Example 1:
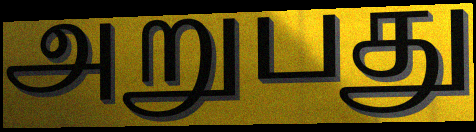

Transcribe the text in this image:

அறுபது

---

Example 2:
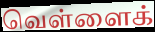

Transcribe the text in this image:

வெள்ளைக்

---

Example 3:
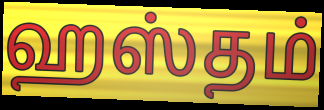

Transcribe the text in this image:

ஹஸ்தம்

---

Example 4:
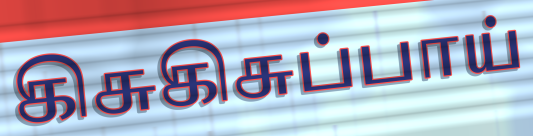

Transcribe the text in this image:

கிசுகிசுப்பாய்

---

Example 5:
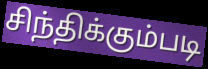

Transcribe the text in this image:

சிந்திக்கும்படி